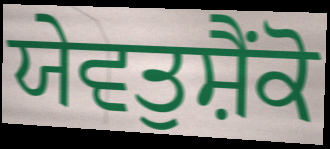
ਯੇਵਤੁਸ਼ੈਂਕੋ